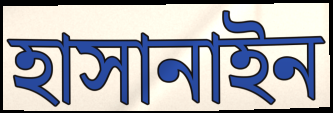
হাসানাইন